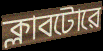
ক্লাবটোৱে